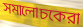
সমালোচকেরা